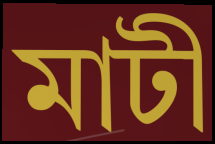
মাটী